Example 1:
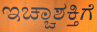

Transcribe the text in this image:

ಇಚ್ಚಾಶಕ್ತಿಗೆ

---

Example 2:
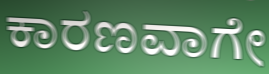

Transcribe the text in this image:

ಕಾರಣವಾಗೇ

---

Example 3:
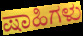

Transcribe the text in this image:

ಷಾಹಿಗಳು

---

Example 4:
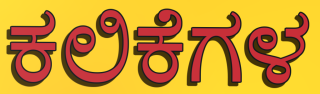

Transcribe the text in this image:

ಕಲಿಕೆಗಳ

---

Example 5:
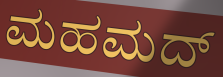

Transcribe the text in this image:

ಮಹಮದ್